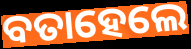
ବତାହେଲେ